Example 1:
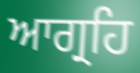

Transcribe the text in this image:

ਆਗ੍ਰਹਿ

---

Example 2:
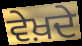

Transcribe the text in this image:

ਵੇਖ਼ਦੇ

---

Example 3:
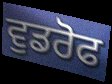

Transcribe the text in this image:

ਵੁਡਰੋਫ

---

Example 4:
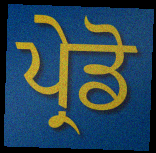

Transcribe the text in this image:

ਪ੍ਰੇਡੋ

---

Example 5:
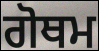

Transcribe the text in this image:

ਗੋਥਮ